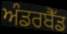
ਅੰਡਰਬੈੱਡ